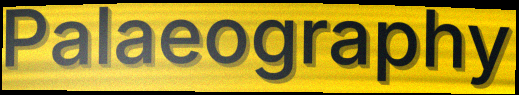
Palaeography